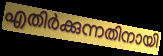
എതിർക്കുന്നതിനായി